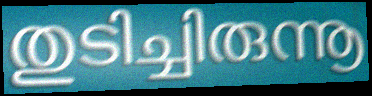
തുടിച്ചിരുന്നൂ